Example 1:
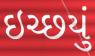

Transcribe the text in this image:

ઇચ્છયું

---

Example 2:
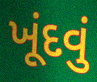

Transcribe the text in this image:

ખૂંદવું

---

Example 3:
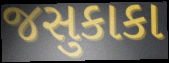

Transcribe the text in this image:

જસુકાકા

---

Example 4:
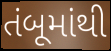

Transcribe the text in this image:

તંબૂમાંથી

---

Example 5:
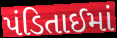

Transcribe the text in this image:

પંડિતાઈમાં